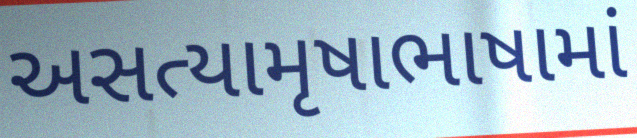
અસત્યામૃષાભાષામાં